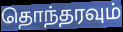
தொந்தரவும்